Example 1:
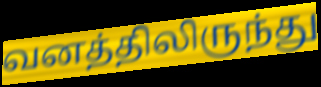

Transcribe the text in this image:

வனத்திலிருந்து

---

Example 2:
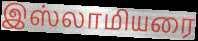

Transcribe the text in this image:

இஸ்லாமியரை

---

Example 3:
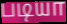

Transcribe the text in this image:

படியா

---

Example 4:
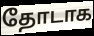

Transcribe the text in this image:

தோடாக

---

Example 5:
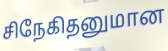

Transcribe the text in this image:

சிநேகிதனுமான